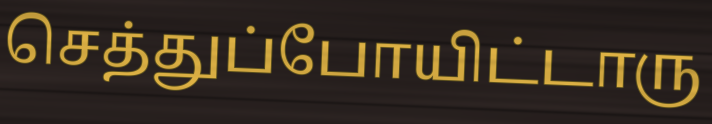
செத்துப்போயிட்டாரு